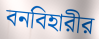
বনবিহারীর